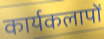
कार्यकलापों